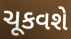
ચૂકવશે